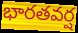
భారతవర్ష